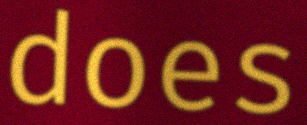
does